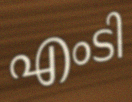
എംടി